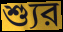
শ্যুর